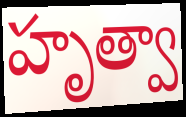
హృత్వా